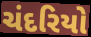
ચંદરિયો